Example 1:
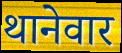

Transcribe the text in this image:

थानेवार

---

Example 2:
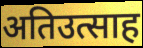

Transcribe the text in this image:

अतिउत्साह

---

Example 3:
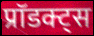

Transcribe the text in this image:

प्रॉडक्ट्स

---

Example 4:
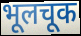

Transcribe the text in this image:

भूलचूक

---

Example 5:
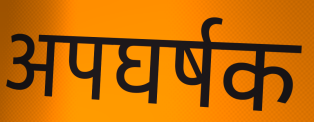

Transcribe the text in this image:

अपघर्षक